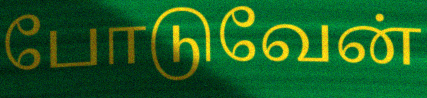
போடுவேன்